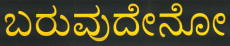
ಬರುವುದೇನೋ